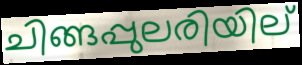
ചിങ്ങപ്പുലരിയില്